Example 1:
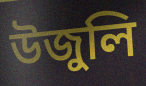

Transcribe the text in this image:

উজুলি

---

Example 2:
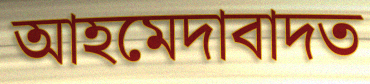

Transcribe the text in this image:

আহমেদাবাদত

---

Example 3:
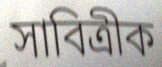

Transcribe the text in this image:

সাবিত্ৰীক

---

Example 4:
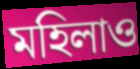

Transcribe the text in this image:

মহিলাও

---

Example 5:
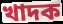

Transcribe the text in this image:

খাদক